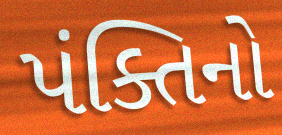
પંક્તિનો